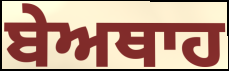
ਬੇਅਥਾਹ